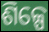
ଶିଳ୍ପେ